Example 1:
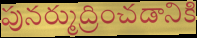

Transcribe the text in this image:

పునర్ముద్రించడానికి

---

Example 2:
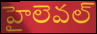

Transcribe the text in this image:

హైలెవల్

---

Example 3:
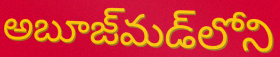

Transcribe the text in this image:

అబూజ్‌మడ్‌లోని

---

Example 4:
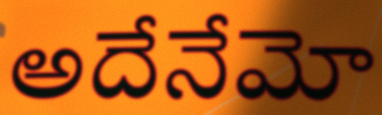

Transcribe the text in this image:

అదేనేమో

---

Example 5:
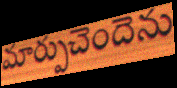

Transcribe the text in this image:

మార్పుచెందెను